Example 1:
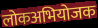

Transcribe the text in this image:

लोकअभियोजक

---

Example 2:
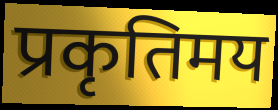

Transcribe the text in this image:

प्रकृतिमय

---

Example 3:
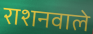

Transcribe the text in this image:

राशनवाले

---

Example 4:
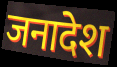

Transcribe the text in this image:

जनादेश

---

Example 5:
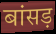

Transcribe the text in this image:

बांसड़